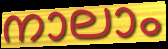
നാലാം